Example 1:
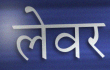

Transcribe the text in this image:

लेवर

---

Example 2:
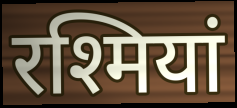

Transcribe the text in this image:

रश्मियां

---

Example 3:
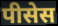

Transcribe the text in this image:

पीसेस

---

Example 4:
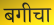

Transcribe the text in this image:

बगीचा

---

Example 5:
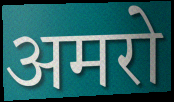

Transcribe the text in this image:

अमरो